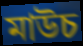
মাউচ